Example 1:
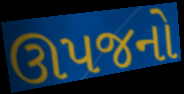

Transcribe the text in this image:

ઊપજનો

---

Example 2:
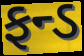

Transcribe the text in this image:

ફન્ડ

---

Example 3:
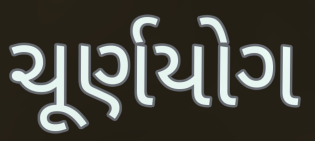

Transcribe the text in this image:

ચૂર્ણયોગ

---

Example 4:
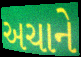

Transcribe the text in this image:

અચાને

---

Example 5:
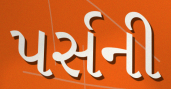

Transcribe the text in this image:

પર્સની